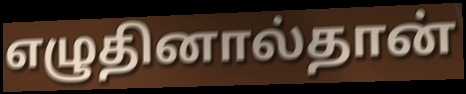
எழுதினால்தான்